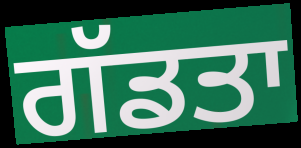
ਗੱਡਤਾ